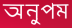
অনুপম